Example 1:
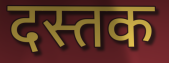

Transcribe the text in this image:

दस्तक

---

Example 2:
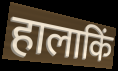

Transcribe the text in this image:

हालाकिं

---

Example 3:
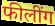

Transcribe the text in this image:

फीलींग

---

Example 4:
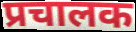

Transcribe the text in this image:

प्रचालक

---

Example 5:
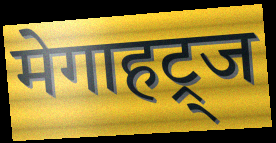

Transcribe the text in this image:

मेगाहट्र्ज